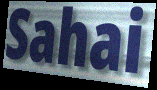
Sahai